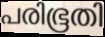
പരിഭൂതി